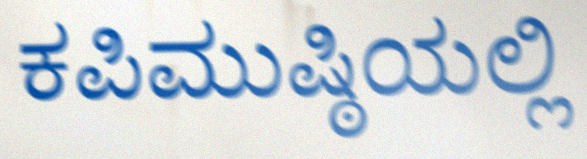
ಕಪಿಮುಷ್ಠಿಯಲ್ಲಿ